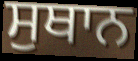
ਸੁਥਾਨ